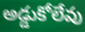
అడ్డుకోలేవు